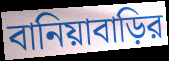
বানিয়াবাড়ির